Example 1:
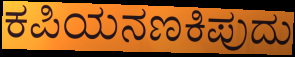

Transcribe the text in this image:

ಕಪಿಯನಣಕಿಪುದು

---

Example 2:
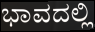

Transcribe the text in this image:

ಭಾವದಲ್ಲಿ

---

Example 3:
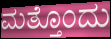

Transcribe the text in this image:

ಮತ್ತೊಂದು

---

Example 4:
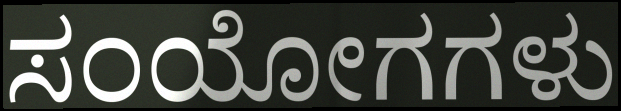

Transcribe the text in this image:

ಸಂಯೋಗಗಳು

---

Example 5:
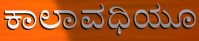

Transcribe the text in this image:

ಕಾಲಾವಧಿಯೂ